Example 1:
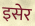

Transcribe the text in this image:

इसेर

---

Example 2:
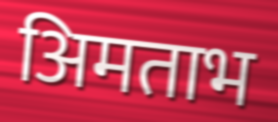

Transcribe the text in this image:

अिमताभ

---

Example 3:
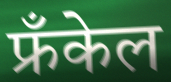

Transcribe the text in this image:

फ्रँकेल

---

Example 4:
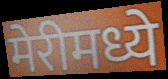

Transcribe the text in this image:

मेरीमध्ये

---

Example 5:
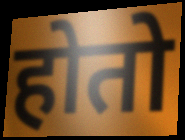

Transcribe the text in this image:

होतो